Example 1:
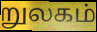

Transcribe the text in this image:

றுலகம்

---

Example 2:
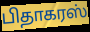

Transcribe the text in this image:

பிதாகரஸ்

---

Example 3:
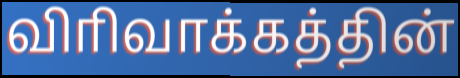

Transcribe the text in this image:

விரிவாக்கத்தின்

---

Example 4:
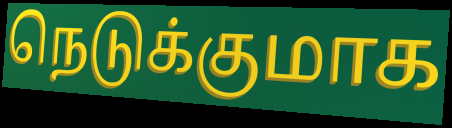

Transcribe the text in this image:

நெடுக்குமாக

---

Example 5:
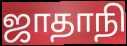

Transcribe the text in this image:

ஜாதாநி